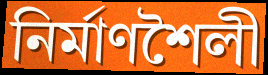
নিৰ্মাণশৈলী